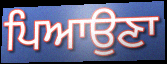
ਪਿਆਉਣਾ